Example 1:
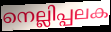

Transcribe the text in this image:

നെല്ലിപ്പലക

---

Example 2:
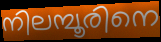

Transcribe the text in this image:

നിലമ്പൂരിനെ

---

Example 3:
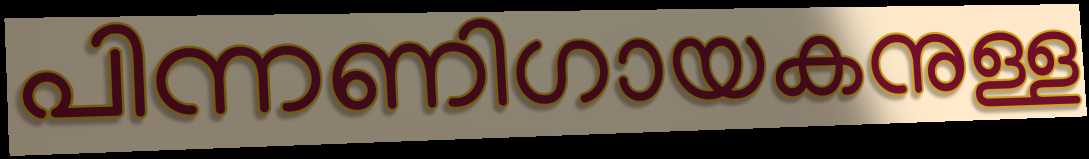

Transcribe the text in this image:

പിന്നണിഗായകനുള്ള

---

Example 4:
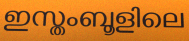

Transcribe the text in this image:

ഇസ്തംബൂളിലെ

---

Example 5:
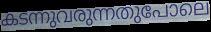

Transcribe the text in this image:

കടന്നുവരുന്നതുപോലെ